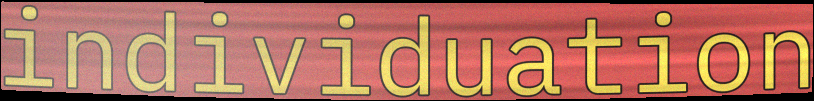
individuation